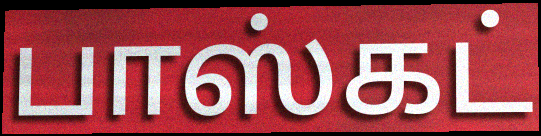
பாஸ்கட்